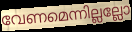
വേണമെന്നില്ലല്ലോ